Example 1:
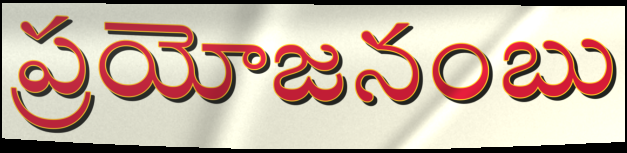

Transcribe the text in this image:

ప్రయోజనంబు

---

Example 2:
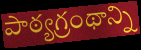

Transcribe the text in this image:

పాఠ్యగ్రంథాన్ని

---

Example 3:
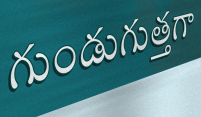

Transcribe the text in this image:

గుండుగుత్తగా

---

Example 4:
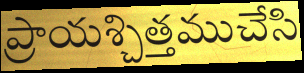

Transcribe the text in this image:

ప్రాయశ్చిత్తముచేసి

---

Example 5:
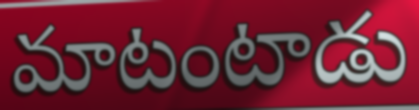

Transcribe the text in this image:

మాటంటాడు